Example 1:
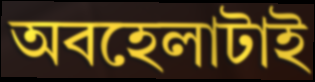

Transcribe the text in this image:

অবহেলাটাই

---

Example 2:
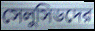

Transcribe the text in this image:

সেলুসিডদের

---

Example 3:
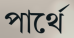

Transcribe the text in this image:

পার্থে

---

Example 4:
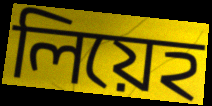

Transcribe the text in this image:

লিয়েহ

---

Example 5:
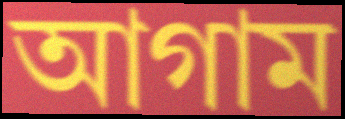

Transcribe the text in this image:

আগাম